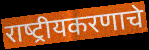
राष्ट्रीयकरणाचे